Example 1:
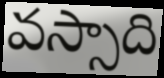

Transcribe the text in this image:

వస్సాది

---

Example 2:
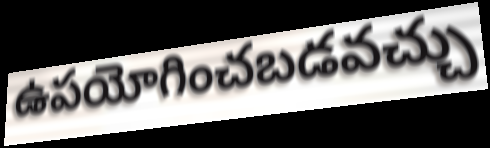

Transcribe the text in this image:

ఉపయోగించబడవచ్చు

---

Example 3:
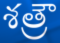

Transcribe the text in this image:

శత్రౌ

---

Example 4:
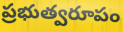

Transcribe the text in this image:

ప్రభుత్వరూపం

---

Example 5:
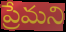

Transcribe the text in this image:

ప్రేమని